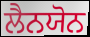
ਲੈਨਯੋਨ